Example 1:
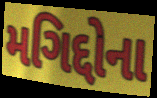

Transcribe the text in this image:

મગિદ્દોના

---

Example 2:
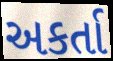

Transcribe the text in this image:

અકર્તા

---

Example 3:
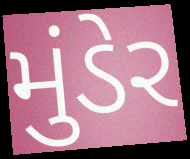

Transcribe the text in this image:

મુંડેર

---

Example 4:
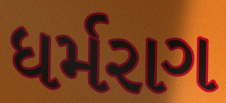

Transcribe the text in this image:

ધર્મરાગ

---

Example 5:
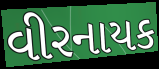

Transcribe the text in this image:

વીરનાયક